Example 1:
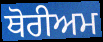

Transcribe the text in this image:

ਥੋਰੀਅਮ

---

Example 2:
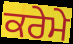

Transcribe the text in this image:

ਕਰੇਮੇ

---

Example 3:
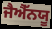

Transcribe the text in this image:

ਜੈਐੱਨਯੂ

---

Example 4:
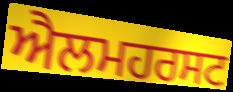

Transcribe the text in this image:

ਐਲਮਹਰਸਟ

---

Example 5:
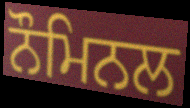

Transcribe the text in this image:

ਨੌਮਿਨਲ